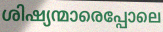
ശിഷ്യന്മാരെപ്പോലെ